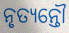
ନୃତ୍ୟନ୍ତୌ